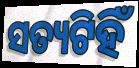
ସତ୍ୟଟିହିଁ